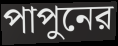
পাপুনের